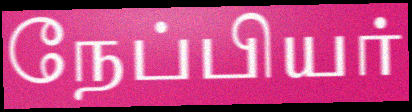
நேப்பியர்